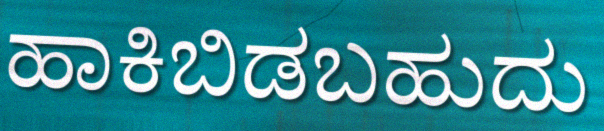
ಹಾಕಿಬಿಡಬಹುದು